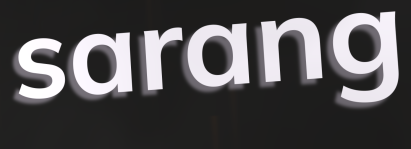
sarang